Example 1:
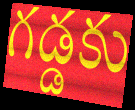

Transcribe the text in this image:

గడ్డకు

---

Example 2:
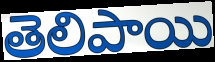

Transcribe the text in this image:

తెలిపాయి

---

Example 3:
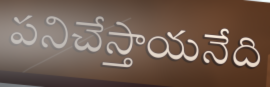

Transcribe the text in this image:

పనిచేస్తాయనేది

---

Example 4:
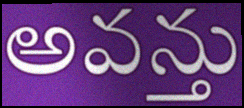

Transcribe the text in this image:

అవన్తు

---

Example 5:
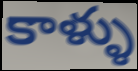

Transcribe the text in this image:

కాళ్ళు